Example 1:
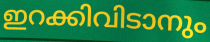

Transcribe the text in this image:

ഇറക്കിവിടാനും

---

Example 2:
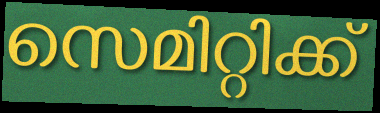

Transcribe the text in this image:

സെമിറ്റിക്ക്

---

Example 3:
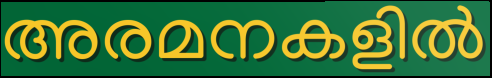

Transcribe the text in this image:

അരമനകളിൽ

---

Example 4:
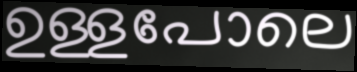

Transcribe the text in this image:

ഉള്ളപോലെ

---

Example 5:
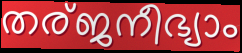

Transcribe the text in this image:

തര്ജനീഭ്യാം